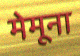
मेमूना